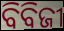
ବିବିଜୀ